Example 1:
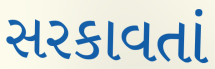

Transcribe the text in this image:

સરકાવતાં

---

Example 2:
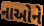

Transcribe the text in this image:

નાઓને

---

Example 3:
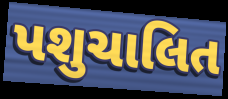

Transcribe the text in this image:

પશુચાલિત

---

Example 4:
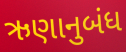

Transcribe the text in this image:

ઋણાનુબંધ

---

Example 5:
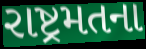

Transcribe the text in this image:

રાષ્ટ્રમતના